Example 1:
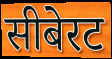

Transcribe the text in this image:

सीबेरट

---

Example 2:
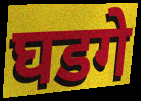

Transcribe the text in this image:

घडगे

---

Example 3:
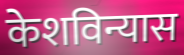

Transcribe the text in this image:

केशविन्यास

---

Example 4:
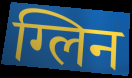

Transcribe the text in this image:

ग्लिन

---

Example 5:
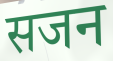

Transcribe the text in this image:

सजन